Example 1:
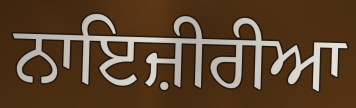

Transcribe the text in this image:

ਨਾਇਜ਼ੀਰੀਆ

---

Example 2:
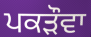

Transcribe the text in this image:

ਪਕੜੌਵਾ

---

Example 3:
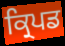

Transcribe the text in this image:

ਕ੍ਰਿਪਡ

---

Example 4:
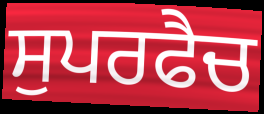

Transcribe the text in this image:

ਸੁਪਰਫੈਚ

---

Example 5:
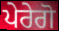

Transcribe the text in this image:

ਪੇਰੇਗੋ